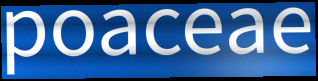
poaceae